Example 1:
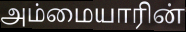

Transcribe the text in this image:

அம்மையாரின்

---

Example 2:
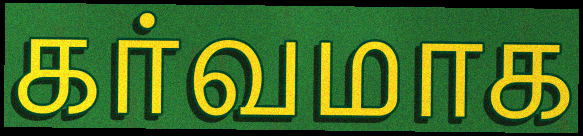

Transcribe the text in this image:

கர்வமாக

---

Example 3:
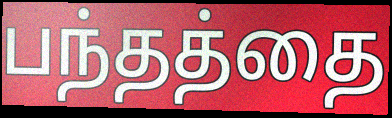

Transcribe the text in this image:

பந்தத்தை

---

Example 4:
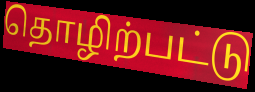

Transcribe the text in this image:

தொழிற்பட்டு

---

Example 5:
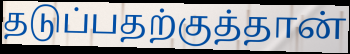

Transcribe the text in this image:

தடுப்பதற்குத்தான்